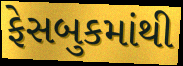
ફેસબુકમાંથી